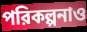
পরিকল্পনাও